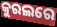
କୁରଲରେ